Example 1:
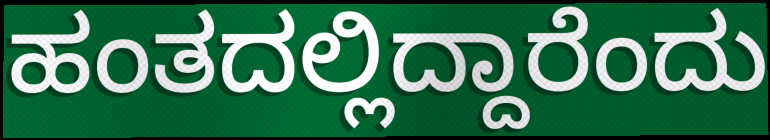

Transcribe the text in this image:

ಹಂತದಲ್ಲಿದ್ದಾರೆಂದು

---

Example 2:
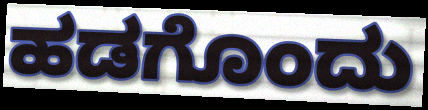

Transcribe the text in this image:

ಹಡಗೊಂದು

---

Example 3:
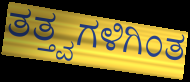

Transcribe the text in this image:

ತತ್ತ್ವಗಳಿಗಿಂತ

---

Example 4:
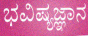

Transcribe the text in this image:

ಭವಿಷ್ಯಜ್ಞಾನ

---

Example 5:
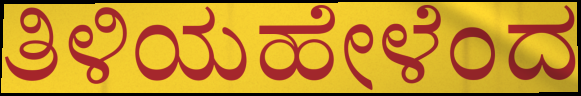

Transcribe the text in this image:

ತಿಳಿಯಹೇಳೆಂದ